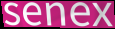
senex